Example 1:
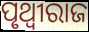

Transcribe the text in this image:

ପୃଥ୍ବୀରାଜ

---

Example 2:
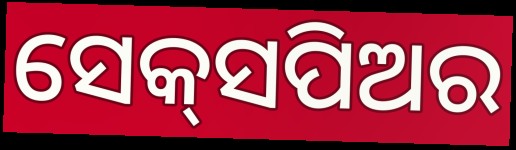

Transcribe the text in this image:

ସେକ୍‌ସପିଅର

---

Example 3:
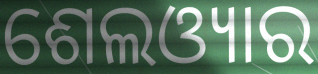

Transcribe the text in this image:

ଶେଲଓ୍ୟାର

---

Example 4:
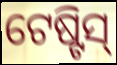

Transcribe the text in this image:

ଟେଷ୍ଟିସ୍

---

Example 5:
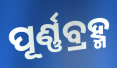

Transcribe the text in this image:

ପୂର୍ଣ୍ଣବ୍ରହ୍ମ